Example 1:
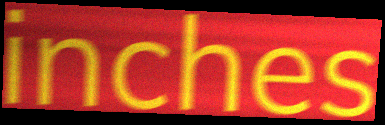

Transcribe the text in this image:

inches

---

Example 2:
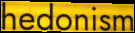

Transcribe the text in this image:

hedonism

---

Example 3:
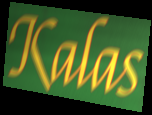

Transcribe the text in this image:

Kalas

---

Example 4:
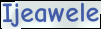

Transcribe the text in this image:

Ijeawele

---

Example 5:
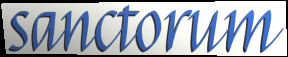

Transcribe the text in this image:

sanctorum